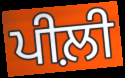
ਪੀਲ਼ੀ